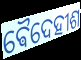
ଵୈଦେହୀଶ